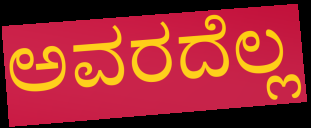
ಅವರದೆಲ್ಲ